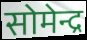
सोमेन्द्र